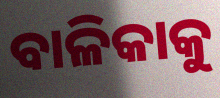
ବାଳିକାକୁ